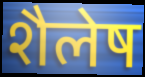
शैलेष